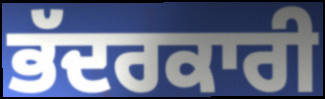
ਭੱਦਰਕਾਰੀ